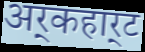
अर्कहार्ट